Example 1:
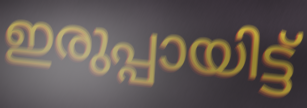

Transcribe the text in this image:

ഇരുപ്പായിട്ട്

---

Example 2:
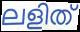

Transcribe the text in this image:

ലളിത്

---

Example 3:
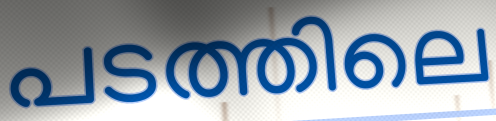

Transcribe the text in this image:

പടത്തിലെ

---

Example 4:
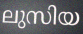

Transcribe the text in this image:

ലുസിയ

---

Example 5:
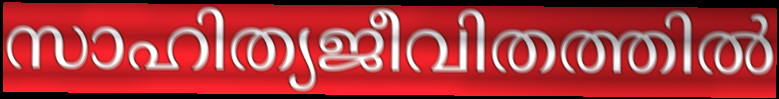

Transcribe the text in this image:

സാഹിത്യജീവിതത്തിൽ